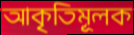
আকৃতিমূলক